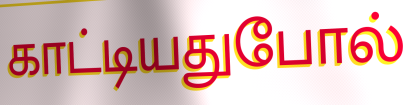
காட்டியதுபோல்